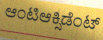
ಆಂಟಿಆಕ್ಸಿಡೆಂಟ್